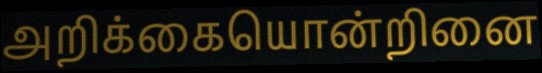
அறிக்கையொன்றினை